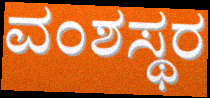
ವಂಶಸ್ಥರ